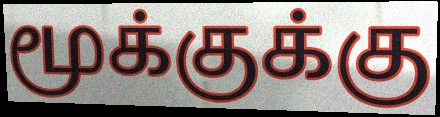
மூக்குக்கு